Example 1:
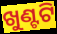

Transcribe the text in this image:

ଖୁଣ୍ଟଟି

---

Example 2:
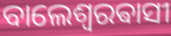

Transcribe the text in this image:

ବାଲେଶ୍ଵରଵାସୀ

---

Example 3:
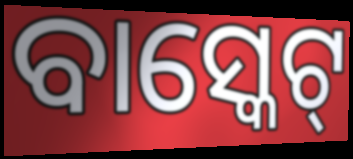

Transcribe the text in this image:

ବାସ୍କେଟ୍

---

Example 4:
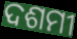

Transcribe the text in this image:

ଦଶମୀ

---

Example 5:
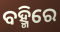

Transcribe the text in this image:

ବହ୍ମିରେ